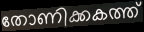
തോണിക്കകത്ത്